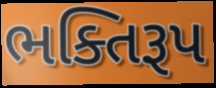
ભક્તિરૂપ